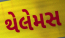
થેલેમસ